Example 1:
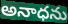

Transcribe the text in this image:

అనాధను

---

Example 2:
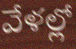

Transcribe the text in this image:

వేళల్లో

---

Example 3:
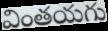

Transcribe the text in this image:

వింతయగు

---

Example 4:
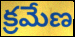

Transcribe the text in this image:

క్రమేణ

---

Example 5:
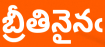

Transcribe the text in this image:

బ్రీతినైనఁ